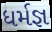
ધર્મજ્ઞ